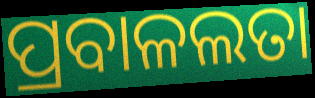
ପ୍ରବାଳଲତା